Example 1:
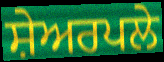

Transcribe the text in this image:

ਸ਼ੇਅਰਪਲੇ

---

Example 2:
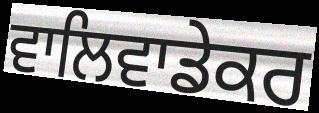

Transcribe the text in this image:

ਵਾਲਿਵਾਡੇਕਰ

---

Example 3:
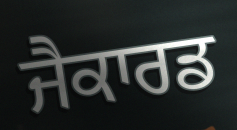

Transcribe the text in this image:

ਜੈਕਾਰਡ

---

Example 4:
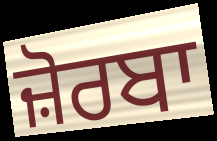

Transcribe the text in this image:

ਜ਼ੋਰਬਾ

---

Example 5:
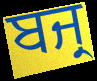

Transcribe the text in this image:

ਬਜ੍ਰ